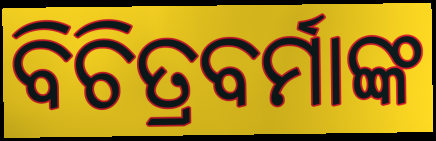
ବିଚିତ୍ରବର୍ମାଙ୍କ